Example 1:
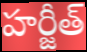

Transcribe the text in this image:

హర్జీత్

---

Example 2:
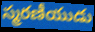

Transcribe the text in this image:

స్మరణీయుడు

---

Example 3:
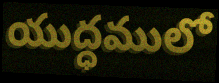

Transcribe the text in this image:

యుద్ధములో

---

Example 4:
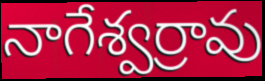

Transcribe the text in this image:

నాగేశ్వర్రావు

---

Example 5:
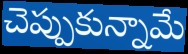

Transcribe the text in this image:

చెప్పుకున్నామే